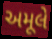
અમૂલે